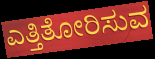
ಎತ್ತಿತೋರಿಸುವ